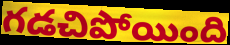
గడచిపోయింది